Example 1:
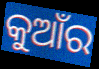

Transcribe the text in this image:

କୁଆଁର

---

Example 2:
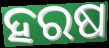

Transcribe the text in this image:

ହରଷ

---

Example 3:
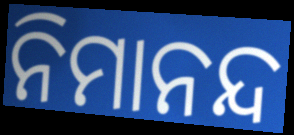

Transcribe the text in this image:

ନିମାନନ୍ଦ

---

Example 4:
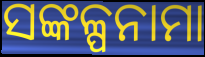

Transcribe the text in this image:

ସଙ୍କଳ୍ପନାମା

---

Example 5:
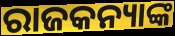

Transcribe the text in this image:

ରାଜକନ୍ୟାଙ୍କ